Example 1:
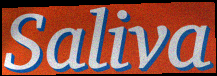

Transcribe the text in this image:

Saliva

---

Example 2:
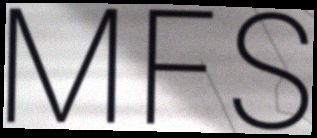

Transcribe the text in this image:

MFS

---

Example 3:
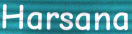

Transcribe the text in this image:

Harsana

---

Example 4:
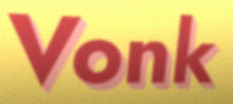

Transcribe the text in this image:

Vonk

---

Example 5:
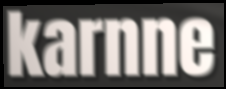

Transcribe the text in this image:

karnne